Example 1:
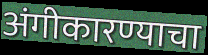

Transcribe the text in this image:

अंगीकारण्याचा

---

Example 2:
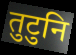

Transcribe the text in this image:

तुटुनि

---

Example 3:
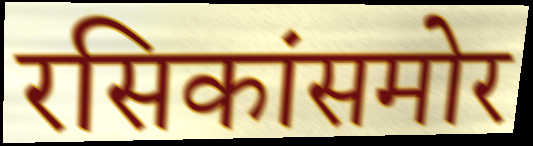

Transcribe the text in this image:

रसिकांसमोर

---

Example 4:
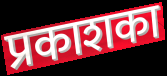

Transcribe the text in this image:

प्रकाशका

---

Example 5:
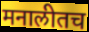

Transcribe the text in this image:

मनालीतच